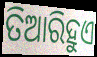
ତିଆରିହୁଏ